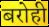
बरोही